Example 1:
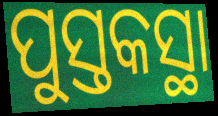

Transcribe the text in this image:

ପୁସ୍ତକସ୍ଥା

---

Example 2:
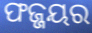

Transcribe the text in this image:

ଫଜ୍ଜୟର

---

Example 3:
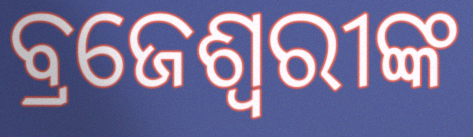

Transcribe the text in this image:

ବ୍ରଜେଶ୍ୱରୀଙ୍କ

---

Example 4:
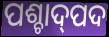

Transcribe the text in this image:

ପଶ୍ଚାଦ୍‍ପଦ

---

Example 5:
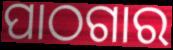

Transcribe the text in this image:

ପାଠଗାର